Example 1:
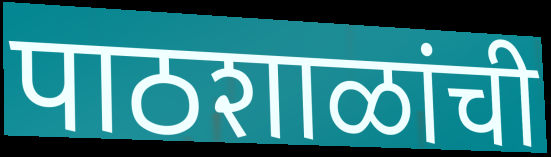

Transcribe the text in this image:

पाठशाळांची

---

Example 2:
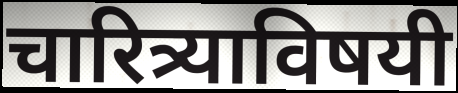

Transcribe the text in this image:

चारित्र्याविषयी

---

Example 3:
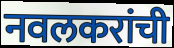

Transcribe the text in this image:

नवलकरांची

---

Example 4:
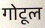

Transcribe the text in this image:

गोटूल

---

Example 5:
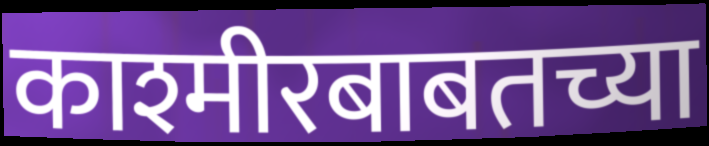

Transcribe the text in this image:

काश्मीरबाबतच्या